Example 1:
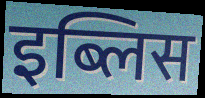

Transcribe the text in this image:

इब्लिस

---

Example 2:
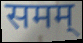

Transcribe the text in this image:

समम्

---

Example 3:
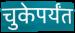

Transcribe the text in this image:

चुकेपर्यंत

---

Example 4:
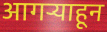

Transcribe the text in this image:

आगऱ्याहून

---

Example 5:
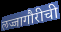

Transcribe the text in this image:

लज्जागौरीची